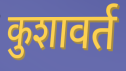
कुशावर्त